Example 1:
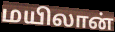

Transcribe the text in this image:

மயிலான்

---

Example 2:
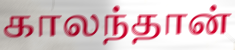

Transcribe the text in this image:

காலந்தான்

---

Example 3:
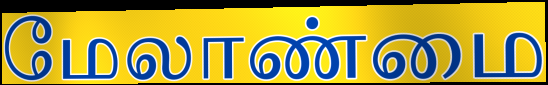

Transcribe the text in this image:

மேலாண்மை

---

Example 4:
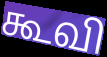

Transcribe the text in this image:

கூவி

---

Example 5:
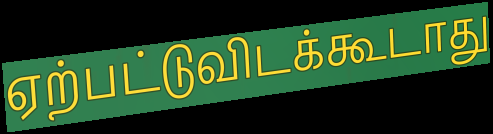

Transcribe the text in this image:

ஏற்பட்டுவிடக்கூடாது